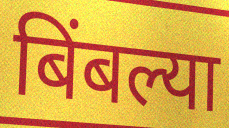
बिंबल्या